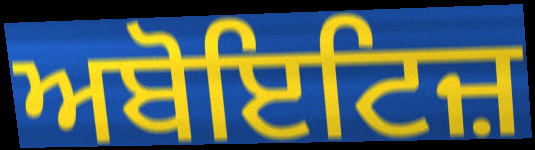
ਅਬੋਇਟਿਜ਼